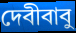
দেবীবাবু